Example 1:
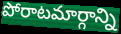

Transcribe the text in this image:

పోరాటమార్గాన్ని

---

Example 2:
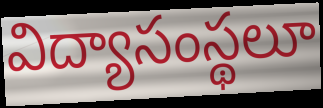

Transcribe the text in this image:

విద్యాసంస్థలూ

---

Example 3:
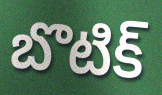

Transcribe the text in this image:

బొటిక్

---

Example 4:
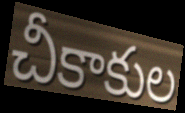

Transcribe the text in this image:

చీకాకుల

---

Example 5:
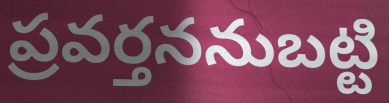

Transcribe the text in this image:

ప్రవర్తననుబట్టి